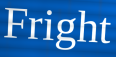
Fright